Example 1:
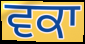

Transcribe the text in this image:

ਵਕਾ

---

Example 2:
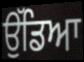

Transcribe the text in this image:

ਉੱਡਿਆ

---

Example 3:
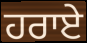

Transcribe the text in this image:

ਹਰਾਏ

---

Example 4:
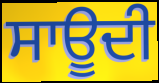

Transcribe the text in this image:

ਸਾਊਦੀ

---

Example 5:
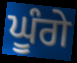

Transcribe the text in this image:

ਘੂੰਗੇ